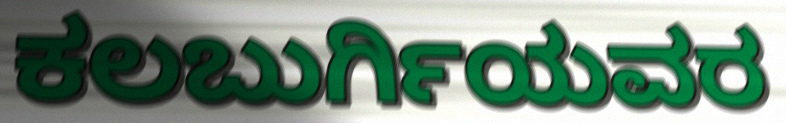
ಕಲಬುರ್ಗಿಯವರ